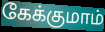
கேக்குமாம்